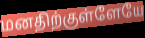
மனதிற்குள்ளேயே